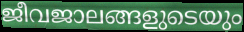
ജീവജാലങ്ങളുടെയും